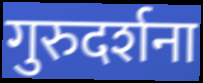
गुरुदर्शना